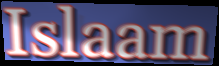
Islaam